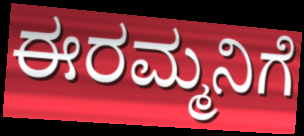
ಈರಮ್ಮನಿಗೆ